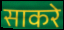
साकरे